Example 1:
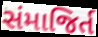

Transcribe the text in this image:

સંમાજિર્ત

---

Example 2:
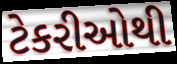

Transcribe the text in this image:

ટેકરીઓથી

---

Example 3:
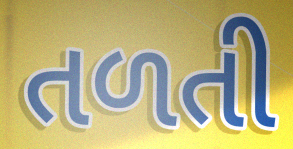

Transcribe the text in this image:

તળતી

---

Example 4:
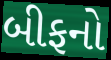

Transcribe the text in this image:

બીફનો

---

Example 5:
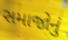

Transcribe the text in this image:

સમાજોનું